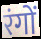
रंगों